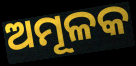
ଅମୂଳକ